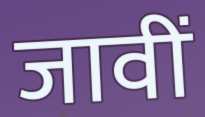
जावीं